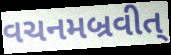
વચનમબ્રવીત્